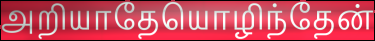
அறியாதேயொழிந்தேன்